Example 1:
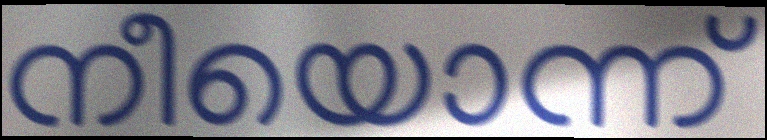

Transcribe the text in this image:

നീയൊന്ന്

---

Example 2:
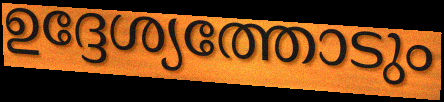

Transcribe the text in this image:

ഉദ്ദേശ്യത്തോടും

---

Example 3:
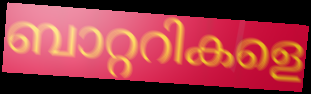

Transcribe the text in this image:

ബാറ്ററികളെ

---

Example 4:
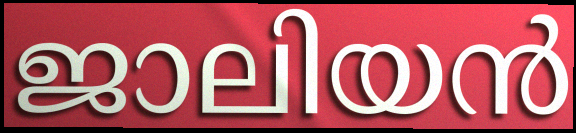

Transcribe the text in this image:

ജാലിയൻ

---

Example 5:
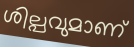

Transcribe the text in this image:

ശില്പവുമാണ്